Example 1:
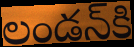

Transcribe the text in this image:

లండన్‌కి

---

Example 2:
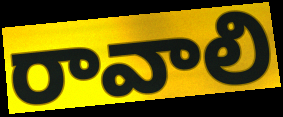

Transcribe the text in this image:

రావాలి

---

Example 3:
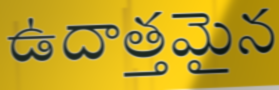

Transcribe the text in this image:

ఉదాత్తమైన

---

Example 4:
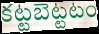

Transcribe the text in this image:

కట్టబెట్టటం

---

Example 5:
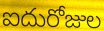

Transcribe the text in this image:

ఐదురోజుల